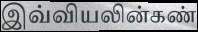
இவ்வியலின்கண்